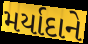
મર્યાદાને